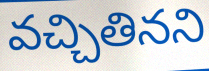
వచ్చితినని